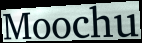
Moochu